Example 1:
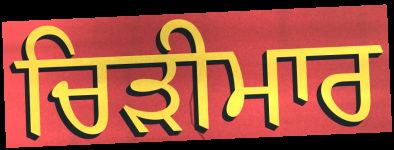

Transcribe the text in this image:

ਚਿੜੀਮਾਰ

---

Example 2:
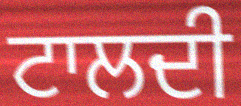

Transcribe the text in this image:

ਟਾਲਦੀ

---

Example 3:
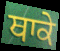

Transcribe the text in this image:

ਥਾਕੇ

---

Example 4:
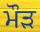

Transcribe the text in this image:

ਮੌਡ਼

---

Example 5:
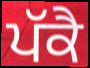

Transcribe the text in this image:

ਪੱਕੈ